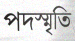
পদস্মৃতি